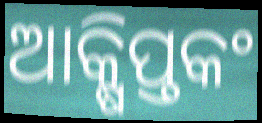
ଆକ୍ଷିପ୍ତକଂ